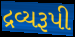
દ્રવ્યરૂપી